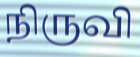
நிருவி